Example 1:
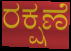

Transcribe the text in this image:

ರಕ್ಷಣೆ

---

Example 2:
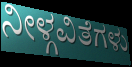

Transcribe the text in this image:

ನೀಳ್ಗವಿತೆಗಳು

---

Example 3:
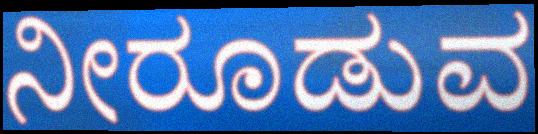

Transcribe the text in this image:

ನೀರೂಡುವ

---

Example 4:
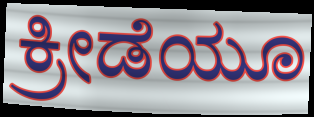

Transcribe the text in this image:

ಕ್ರೀಡೆಯೂ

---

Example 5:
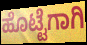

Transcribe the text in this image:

ಹೊಟ್ಟೆಗಾಗಿ